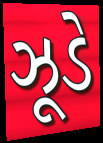
ઝૂડે